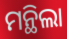
ମନ୍ଥିଲା